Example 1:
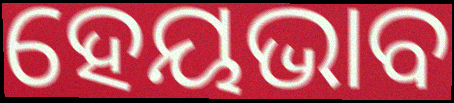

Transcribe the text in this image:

ହେୟଭାବ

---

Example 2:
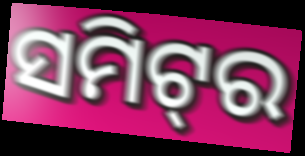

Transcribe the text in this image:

ସମିଟ୍‌ର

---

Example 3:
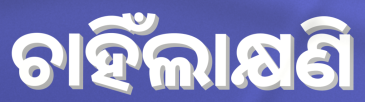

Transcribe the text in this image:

ଚାହିଁଲାକ୍ଷଣି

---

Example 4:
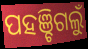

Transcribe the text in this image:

ପହଞ୍ଚିଗଲୁଁ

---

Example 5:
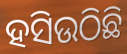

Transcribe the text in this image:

ହସିଉଠିଛି